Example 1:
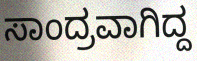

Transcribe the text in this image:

ಸಾಂದ್ರವಾಗಿದ್ದ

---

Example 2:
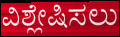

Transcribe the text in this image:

ವಿಶ್ಲೇಷಿಸಲು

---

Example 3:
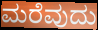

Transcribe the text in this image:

ಮರೆವುದು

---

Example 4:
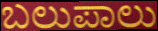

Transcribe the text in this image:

ಬಲುಪಾಲು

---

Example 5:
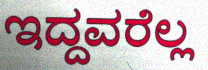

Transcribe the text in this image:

ಇದ್ದವರೆಲ್ಲ